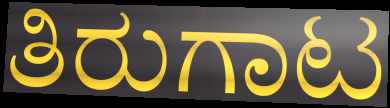
ತಿರುಗಾಟ